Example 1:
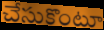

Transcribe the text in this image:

చేసుకొంటూ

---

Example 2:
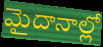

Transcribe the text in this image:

మైదానాల్లో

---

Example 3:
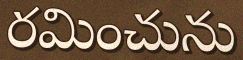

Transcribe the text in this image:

రమించును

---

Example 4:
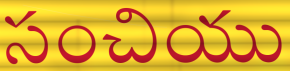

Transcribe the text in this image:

సంచియు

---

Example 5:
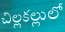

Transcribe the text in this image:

చిల్లకల్లులో